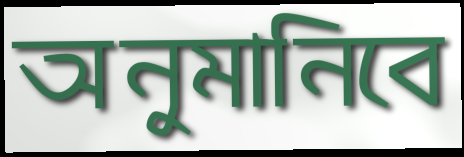
অনুমানিবে